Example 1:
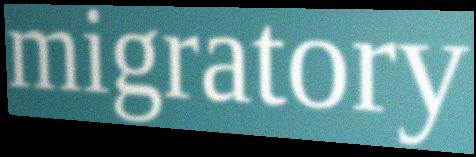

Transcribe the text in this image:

migratory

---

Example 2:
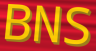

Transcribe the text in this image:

BNS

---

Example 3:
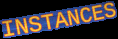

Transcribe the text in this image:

INSTANCES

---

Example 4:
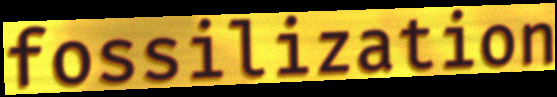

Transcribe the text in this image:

fossilization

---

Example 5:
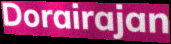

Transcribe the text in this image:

Dorairajan